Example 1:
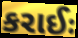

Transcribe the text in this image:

કરાઈઃ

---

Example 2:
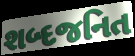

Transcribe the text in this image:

શબ્દજનિત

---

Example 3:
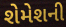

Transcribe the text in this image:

શેમેશની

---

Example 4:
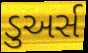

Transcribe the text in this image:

ડુઅર્સ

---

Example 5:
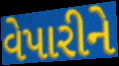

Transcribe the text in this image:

વેપારીને